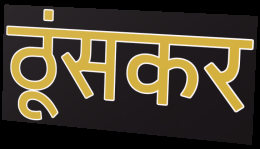
ठूंसकर